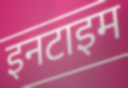
इनटाइम